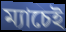
ম্যাচেই